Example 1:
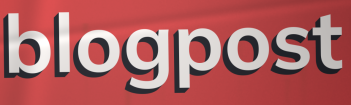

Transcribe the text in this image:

blogpost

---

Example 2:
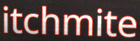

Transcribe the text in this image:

itchmite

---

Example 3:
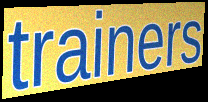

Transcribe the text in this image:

trainers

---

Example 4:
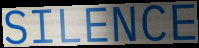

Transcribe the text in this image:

SILENCE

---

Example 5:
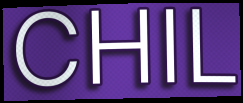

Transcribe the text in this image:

CHIL